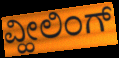
ವ್ಹೀಲಿಂಗ್